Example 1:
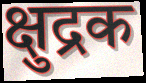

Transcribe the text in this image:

क्षुद्रक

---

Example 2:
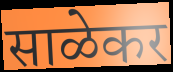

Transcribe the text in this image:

साळेकर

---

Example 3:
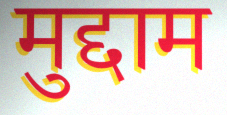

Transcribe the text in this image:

मुद्दाम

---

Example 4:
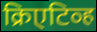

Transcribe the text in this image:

क्रिएटिव्ह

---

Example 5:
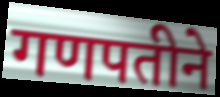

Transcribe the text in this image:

गणपतीने